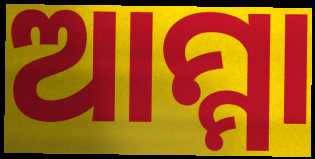
ଆମ୍ମା